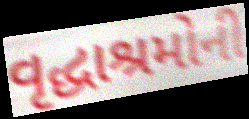
વૃદ્ધાશ્રમોની